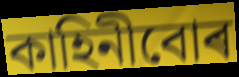
কাহিনীবোৰ